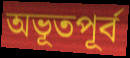
অভূতপূৰ্ব